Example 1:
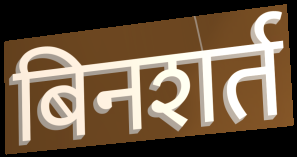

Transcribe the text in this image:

बिनशर्त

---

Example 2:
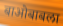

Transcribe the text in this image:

बाओबाबला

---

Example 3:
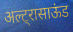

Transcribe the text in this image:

अल्ट्रासाऊंड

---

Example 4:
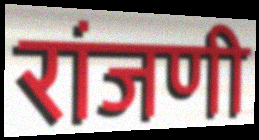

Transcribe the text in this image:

रांजणी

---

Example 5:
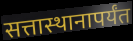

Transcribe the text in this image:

सत्तास्थानापर्यंत